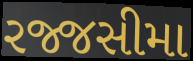
રજ્જસીમા